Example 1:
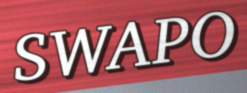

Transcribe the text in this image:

SWAPO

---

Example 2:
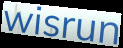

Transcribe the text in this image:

wisrun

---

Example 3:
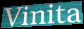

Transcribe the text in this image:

Vinita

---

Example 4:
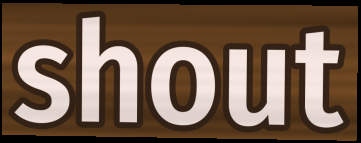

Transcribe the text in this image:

shout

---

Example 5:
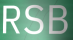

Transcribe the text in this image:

RSB